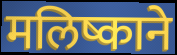
मलिष्काने